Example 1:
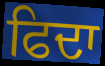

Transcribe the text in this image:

ਫਿਦਾ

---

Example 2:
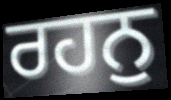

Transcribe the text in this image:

ਰਹਨੁ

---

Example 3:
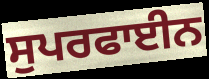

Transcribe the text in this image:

ਸੁਪਰਫਾਈਨ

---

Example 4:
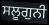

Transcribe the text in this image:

ਸਲੂਗੁਨੀ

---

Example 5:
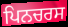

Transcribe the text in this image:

ਪਿਨਚਰਸ